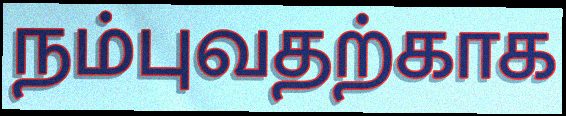
நம்புவதற்காக